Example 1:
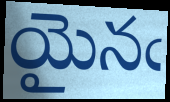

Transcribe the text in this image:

యైనఁ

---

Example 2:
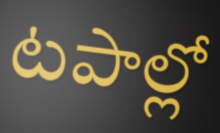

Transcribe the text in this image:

టపాల్లో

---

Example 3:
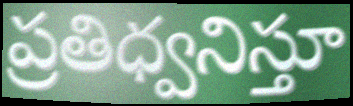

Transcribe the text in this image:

ప్రతిధ్వనిస్తూ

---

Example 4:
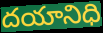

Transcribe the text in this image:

దయానిధి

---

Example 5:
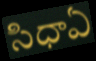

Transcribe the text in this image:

సిధాఏ